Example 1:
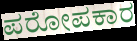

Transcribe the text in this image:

ಪರೋಪಕಾರ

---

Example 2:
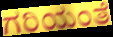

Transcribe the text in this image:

ಗರಿಯಂತೆ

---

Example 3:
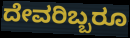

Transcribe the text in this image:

ದೇವರಿಬ್ಬರೂ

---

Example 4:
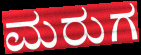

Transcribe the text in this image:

ಮರುಗ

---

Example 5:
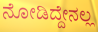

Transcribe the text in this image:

ನೋಡಿದ್ದೇನಲ್ಲ